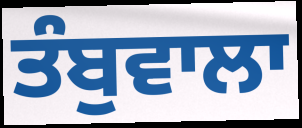
ਤੰਬੁਵਾਲਾ